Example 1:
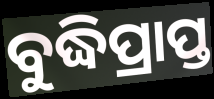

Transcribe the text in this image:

ବୁଦ୍ଧିପ୍ରାପ୍ତ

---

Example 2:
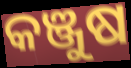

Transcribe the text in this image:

କଞ୍ଜୁଷ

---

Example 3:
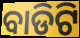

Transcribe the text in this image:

ବାଡିଟି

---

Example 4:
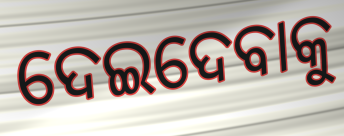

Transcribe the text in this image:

ଦେଇଦେବାକୁ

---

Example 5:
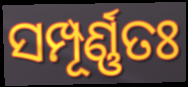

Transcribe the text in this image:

ସମ୍ପୂର୍ଣ୍ଣତଃ